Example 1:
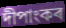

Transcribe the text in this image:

দীপাংকৰ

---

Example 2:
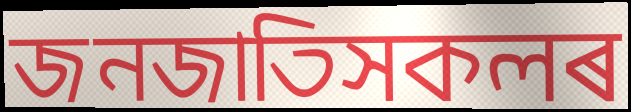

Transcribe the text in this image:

জনজাতিসকলৰ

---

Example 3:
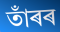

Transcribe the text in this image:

তাঁৰৰ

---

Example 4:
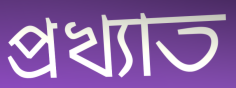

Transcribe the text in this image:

প্ৰখ্যাত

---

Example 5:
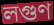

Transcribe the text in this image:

লগুণ